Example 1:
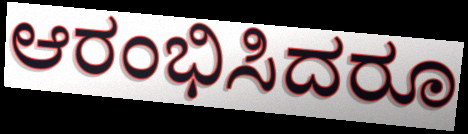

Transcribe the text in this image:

ಆರಂಭಿಸಿದರೂ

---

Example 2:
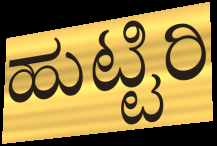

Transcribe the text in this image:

ಹುಟ್ಟಿರಿ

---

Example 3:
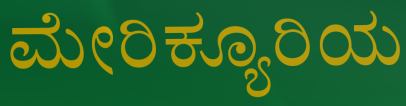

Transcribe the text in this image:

ಮೇರಿಕ್ಯೂರಿಯ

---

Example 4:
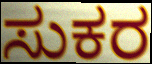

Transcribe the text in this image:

ಸುಕರ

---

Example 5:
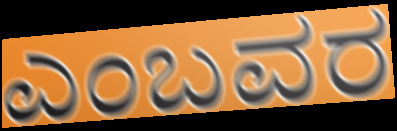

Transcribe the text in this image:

ಎಂಬವರ